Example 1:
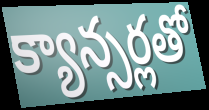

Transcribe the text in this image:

క్యాన్సర్లతో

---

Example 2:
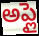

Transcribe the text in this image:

అప్లై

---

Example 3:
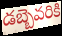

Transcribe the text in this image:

డబ్బెవరికి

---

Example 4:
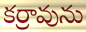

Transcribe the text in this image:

కర్రావును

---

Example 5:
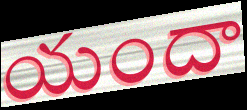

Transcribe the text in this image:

యందా